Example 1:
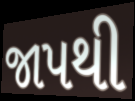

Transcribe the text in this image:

જાપથી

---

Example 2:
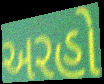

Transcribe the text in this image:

અરહો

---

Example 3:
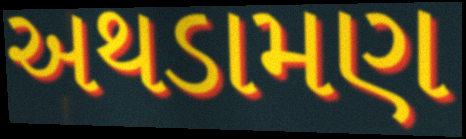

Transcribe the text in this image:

અથડામણ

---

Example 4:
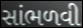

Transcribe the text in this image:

સાંભળવી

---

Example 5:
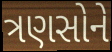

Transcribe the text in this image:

ત્રણસોને